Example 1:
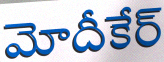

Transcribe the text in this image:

మోదీకేర్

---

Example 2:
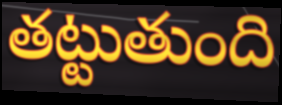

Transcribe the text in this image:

తట్టుతుంది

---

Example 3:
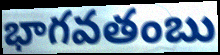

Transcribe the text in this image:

భాగవతంబు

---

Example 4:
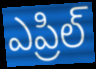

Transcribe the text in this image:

ఎప్రిల్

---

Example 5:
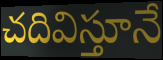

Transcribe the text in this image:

చదివిస్తూనే